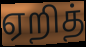
ஏறித்